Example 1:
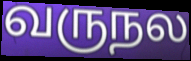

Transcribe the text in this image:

வருநல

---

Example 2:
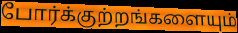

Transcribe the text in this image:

போர்க்குற்றங்களையும்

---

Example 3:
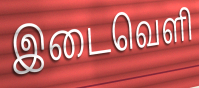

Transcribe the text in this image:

இடைவெளி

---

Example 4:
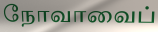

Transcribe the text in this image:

நோவாவைப்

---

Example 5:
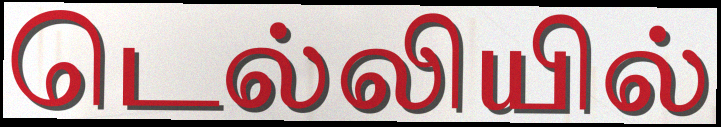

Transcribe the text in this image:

டெல்லியில்